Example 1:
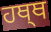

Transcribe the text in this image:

ਹਥ੍ਥ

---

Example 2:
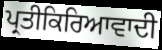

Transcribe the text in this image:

ਪ੍ਰਤੀਕਿਰਿਆਵਾਦੀ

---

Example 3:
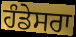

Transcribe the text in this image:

ਹੰਡੇਸਰਾ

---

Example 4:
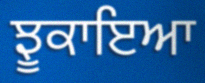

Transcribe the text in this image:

ਝੂਕਾਇਆ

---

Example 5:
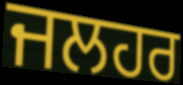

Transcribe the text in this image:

ਜਲਹਰ